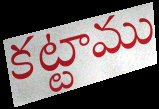
కట్టాము